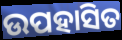
ଉପହାସିତ